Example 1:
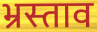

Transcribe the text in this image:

भ्रस्ताव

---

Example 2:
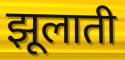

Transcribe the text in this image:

झूलाती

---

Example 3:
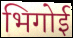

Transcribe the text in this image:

भिगोई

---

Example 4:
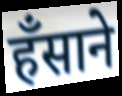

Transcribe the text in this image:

हँसाने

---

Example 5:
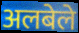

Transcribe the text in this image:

अलबेले